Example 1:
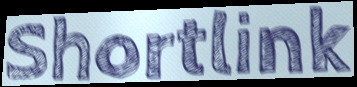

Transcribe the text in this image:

Shortlink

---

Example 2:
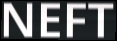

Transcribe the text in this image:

NEFT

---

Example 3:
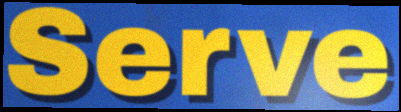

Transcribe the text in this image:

Serve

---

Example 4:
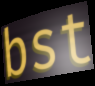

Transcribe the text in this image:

bst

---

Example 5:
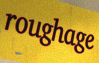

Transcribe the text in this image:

roughage